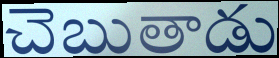
చెబుతాడు